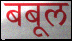
बबूल